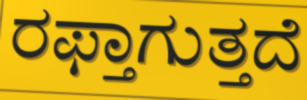
ರಫ್ತಾಗುತ್ತದೆ